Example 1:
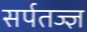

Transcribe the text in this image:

सर्पतज्ज्ञ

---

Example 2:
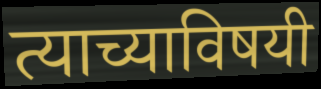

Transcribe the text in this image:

त्याच्याविषयी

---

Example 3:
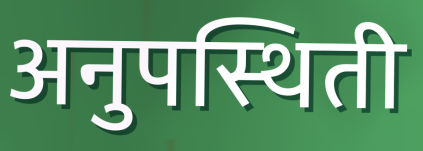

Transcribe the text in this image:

अनुपस्थिती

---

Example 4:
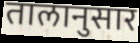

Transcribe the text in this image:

तालानुसार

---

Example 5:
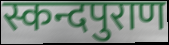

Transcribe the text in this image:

स्कन्दपुराण